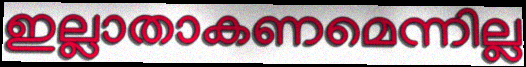
ഇല്ലാതാകണമെന്നില്ല